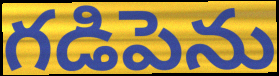
గడిపెను